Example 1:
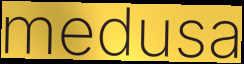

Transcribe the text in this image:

medusa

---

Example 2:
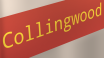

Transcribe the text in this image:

Collingwood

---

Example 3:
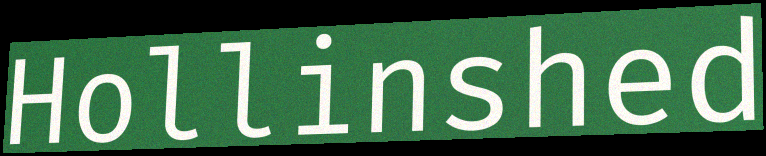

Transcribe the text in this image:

Hollinshed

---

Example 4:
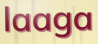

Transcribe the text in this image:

laaga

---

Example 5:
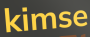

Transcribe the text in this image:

kimse